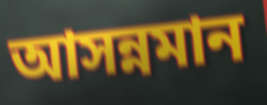
আসন্নমান